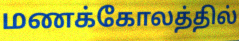
மணக்கோலத்தில்